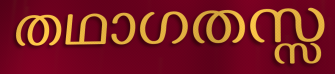
തഥാഗതസ്സ